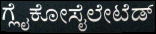
ಗ್ಲೈಕೋಸೈಲೇಟೆಡ್